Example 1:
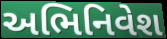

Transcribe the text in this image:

અભિનિવેશ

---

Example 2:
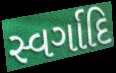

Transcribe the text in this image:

સ્વર્ગાદિ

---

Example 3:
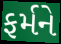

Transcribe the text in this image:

ફર્મને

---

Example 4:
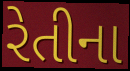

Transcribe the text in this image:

રેતીના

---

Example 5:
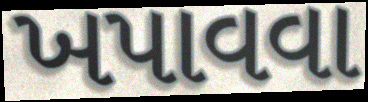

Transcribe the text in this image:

ખપાવવા